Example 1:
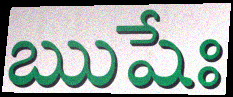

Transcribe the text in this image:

ఋషేః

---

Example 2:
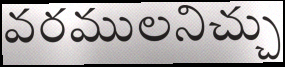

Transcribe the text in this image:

వరములనిచ్చు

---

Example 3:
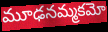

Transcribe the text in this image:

మూఢనమ్మకమో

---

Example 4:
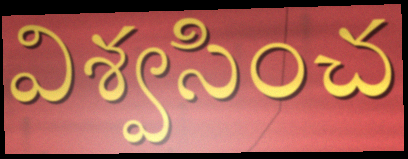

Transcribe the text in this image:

విశ్వసించ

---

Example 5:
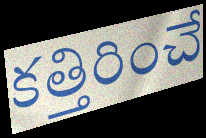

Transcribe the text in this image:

కత్తిరించే